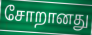
சோறானது